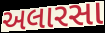
અલારસા